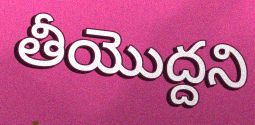
తీయొద్దని